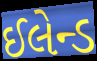
ઈલેન્ડ